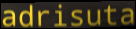
adrisuta